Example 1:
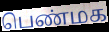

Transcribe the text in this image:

பெண்மக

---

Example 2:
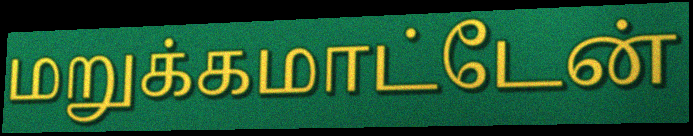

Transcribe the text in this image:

மறுக்கமாட்டேன்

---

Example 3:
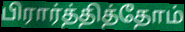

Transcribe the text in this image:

பிரார்த்தித்தோம்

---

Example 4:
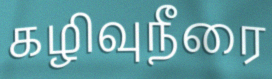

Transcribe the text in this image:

கழிவுநீரை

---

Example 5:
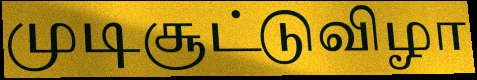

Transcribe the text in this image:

முடிசூட்டுவிழா